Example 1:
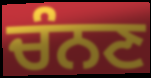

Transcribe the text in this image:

ਚੰਨਣ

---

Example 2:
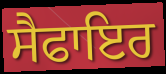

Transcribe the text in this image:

ਸੈਫਾਇਰ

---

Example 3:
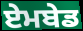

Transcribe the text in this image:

ਏਮਬੇਡ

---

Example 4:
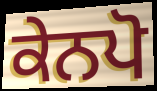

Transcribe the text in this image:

ਕੇਨਪੋ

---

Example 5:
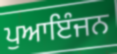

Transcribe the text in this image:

ਪੁਆਇੰਜਨ